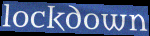
lockdown